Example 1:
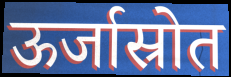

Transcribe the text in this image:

ऊर्जास्रोत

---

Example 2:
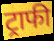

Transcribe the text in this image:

ट्राफी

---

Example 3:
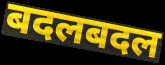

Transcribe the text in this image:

बदलबदल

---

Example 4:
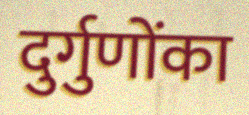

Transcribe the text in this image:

दुर्गुणोंका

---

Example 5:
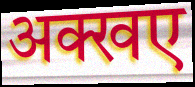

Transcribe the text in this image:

अक्खए